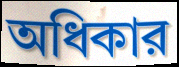
অধিকার